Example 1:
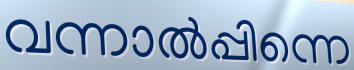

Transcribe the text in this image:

വന്നാൽപ്പിന്നെ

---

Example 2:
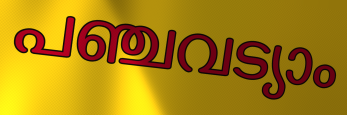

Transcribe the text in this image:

പഞ്ചവട്യാം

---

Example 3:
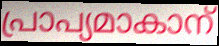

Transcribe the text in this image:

പ്രാപ്യമാകാന്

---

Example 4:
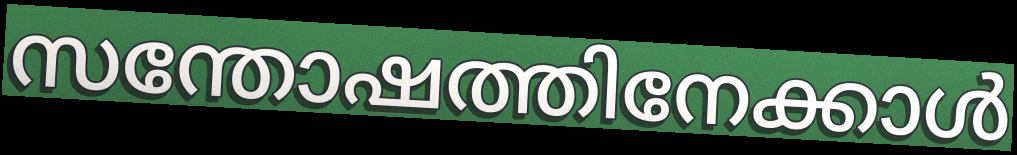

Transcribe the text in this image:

സന്തോഷത്തിനേക്കാൾ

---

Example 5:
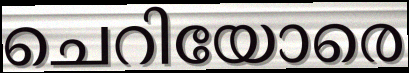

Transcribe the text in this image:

ചെറിയോരെ